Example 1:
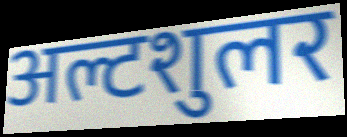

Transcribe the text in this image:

अल्टशुलर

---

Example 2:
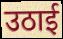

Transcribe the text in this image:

उठाई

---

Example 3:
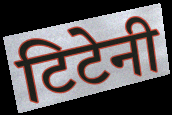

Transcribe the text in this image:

टिटेनी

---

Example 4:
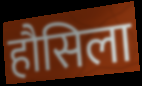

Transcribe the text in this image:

हौसिला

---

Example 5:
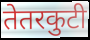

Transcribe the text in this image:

तेतरकुटी